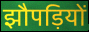
झौपड़ियों